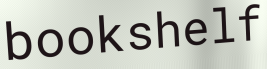
bookshelf